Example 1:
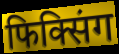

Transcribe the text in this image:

फिक्‍सिंग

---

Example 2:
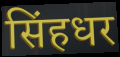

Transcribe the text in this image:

सिंहधर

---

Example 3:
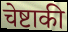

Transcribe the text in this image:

चेष्टाकी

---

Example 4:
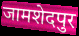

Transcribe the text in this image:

जामशेदपुर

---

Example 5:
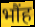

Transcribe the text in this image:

भौंह